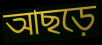
আছড়ে